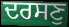
ਦਰਸਣੁ